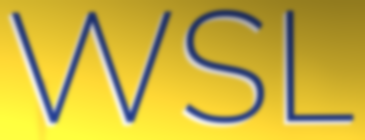
WSL